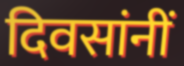
दिवसांनीं